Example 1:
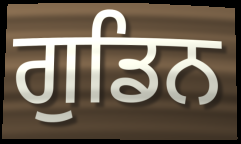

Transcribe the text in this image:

ਗੁਡਿਨ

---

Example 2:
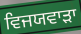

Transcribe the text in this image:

ਵਿਜਯਵਾੜਾ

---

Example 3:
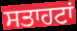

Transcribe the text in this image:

ਸਤਾਹਟਾਂ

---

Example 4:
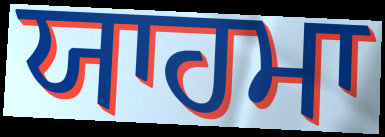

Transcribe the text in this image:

ਯਾਹਮਾ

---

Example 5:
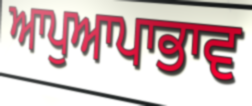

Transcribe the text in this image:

ਆਪੁਆਪਾਭਾਵ